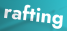
rafting